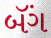
બૅંગ